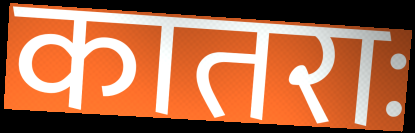
कातराः